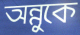
অন্নুকে